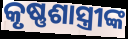
କୃଷ୍ଣଶାସ୍ତ୍ରୀଙ୍କ